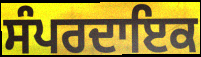
ਸੰਪਰਦਾਇਕ